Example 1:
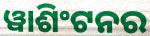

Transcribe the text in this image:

ୱାଶିଂଟନର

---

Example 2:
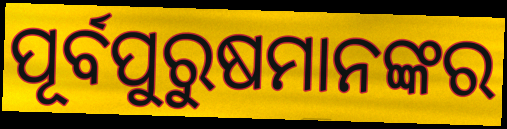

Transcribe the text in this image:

ପୂର୍ବପୁରୁଷମାନଙ୍କର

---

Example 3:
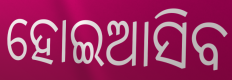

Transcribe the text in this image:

ହୋଇଆସିବ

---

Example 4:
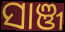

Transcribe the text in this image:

ସାଞ୍ଜ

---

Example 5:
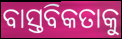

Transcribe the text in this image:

ବାସ୍ତବିକତାକୁ